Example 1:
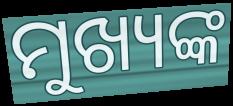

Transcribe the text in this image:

ମୁଖ୍ୟଙ୍କ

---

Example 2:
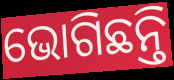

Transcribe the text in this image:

ଭୋଗିଛନ୍ତି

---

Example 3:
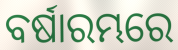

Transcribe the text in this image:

ବର୍ଷାରମ୍ଭରେ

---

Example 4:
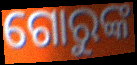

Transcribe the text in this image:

ଗୋରୁଙ୍କ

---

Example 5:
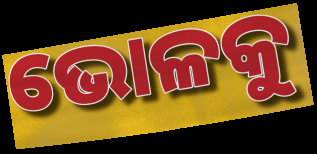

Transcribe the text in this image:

ଭୋଳକୁ